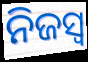
ନିଜସ୍ୱ